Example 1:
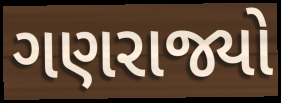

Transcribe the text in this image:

ગણરાજ્યો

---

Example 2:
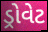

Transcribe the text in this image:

ડ્રોવેટ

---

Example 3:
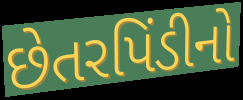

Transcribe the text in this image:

છેતરપિંડીનો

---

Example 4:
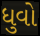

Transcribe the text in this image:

ધુવો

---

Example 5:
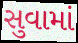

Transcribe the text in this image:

સુવામાં